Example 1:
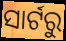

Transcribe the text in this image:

ସାର୍ଟରୁ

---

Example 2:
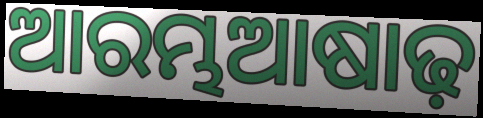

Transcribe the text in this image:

ଆରମ୍ଭଆଷାଢ଼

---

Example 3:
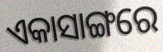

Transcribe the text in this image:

ଏକାସାଙ୍ଗରେ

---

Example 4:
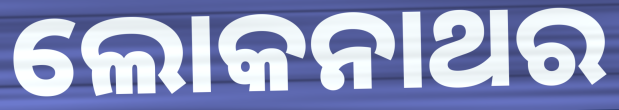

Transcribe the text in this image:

ଲୋକନାଥର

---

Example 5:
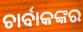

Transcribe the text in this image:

ଚାର୍ବାକଙ୍କର